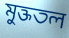
মুক্ততল